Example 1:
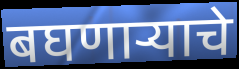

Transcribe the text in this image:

बघणाऱ्याचे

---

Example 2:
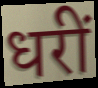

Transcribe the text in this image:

धरीं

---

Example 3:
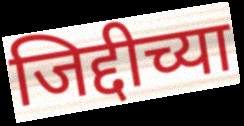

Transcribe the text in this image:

जिद्दीच्या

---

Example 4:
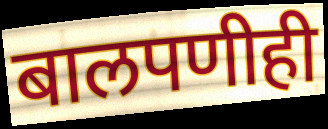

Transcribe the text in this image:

बालपणीही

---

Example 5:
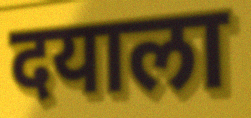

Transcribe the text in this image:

दयाला